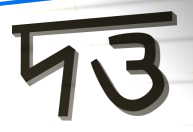
দত্ত